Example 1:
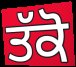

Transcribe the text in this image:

ਤੱਕੋ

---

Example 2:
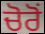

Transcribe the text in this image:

ਚੋਰੋਂ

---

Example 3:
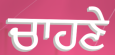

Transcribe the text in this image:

ਚਾਹਣੇ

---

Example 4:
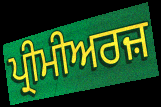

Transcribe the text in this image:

ਪ੍ਰੀਮੀਅਰਜ਼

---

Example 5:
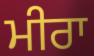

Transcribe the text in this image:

ਮੀਰਾ